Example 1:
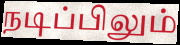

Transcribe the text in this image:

நடிப்பிலும்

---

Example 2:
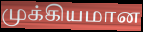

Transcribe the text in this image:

முக்கியமான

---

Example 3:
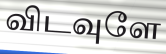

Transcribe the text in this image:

விடவுளே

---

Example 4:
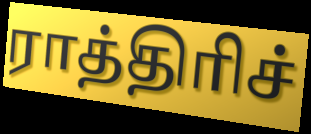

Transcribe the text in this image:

ராத்திரிச்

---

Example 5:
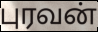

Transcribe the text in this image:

புரவன்